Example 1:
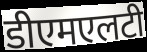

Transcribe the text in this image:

डीएमएलटी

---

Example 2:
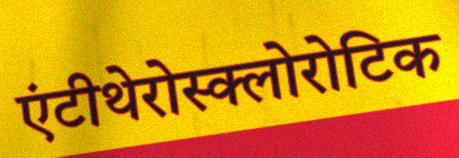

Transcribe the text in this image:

एंटीथेरोस्क्लोरोटिक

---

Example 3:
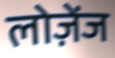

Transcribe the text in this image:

लोज़ेंज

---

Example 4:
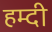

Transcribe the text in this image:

हम्दी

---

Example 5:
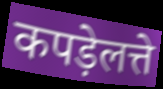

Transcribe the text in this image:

कपड़ेलत्ते